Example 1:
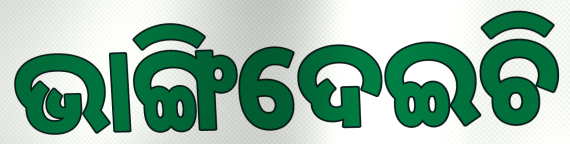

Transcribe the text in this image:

ଭାଙ୍ଗିଦେଇଚି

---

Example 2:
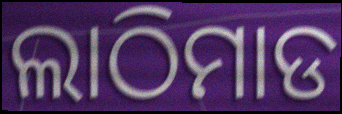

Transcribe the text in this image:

ଲାଠିମାଡ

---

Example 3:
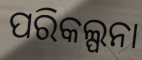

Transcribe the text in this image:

ପରିକଲ୍ପନା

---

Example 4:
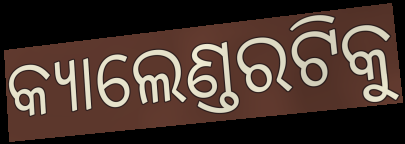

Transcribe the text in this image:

କ୍ୟାଲେଣ୍ଡରଟିକୁ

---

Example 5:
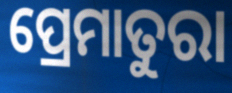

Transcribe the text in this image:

ପ୍ରେମାତୁରା